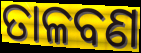
ତାଳବଣ